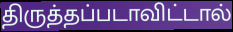
திருத்தப்படாவிட்டால்